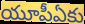
యూపీఏకు